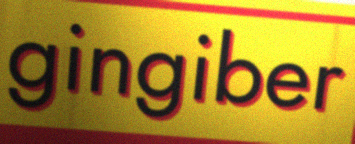
gingiber